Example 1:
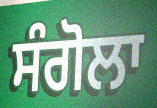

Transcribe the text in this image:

ਸੰਗੋਲਾ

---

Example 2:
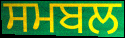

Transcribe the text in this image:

ਸਮਬਲ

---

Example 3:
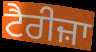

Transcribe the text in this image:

ਟੈਰੀਜ਼ਾ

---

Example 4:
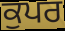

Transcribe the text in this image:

ਕੁਪਰ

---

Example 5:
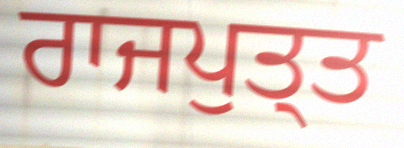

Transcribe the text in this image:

ਰਾਜਪੁਤ੍ਤ